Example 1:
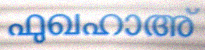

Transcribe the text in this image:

ഫുഖഹാഅ്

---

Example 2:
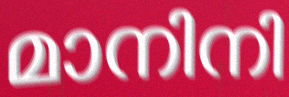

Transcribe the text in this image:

മാനിനി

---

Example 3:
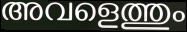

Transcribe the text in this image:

അവളെത്തും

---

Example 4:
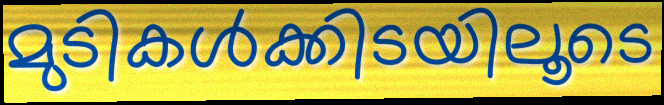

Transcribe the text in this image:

മുടികൾക്കിടയിലൂടെ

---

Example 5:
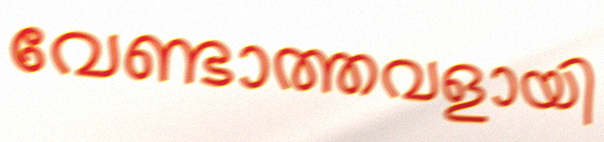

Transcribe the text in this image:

വേണ്ടാത്തവളായി